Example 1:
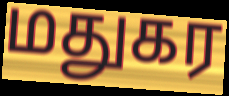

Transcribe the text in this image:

மதுகர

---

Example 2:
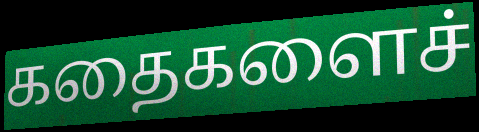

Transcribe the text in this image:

கதைகளைச்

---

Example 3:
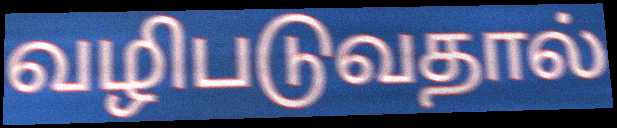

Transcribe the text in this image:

வழிபடுவதால்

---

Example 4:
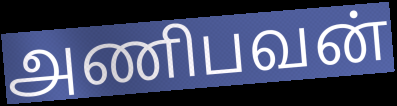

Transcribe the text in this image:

அணிபவன்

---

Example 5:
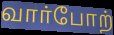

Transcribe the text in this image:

வார்போற்